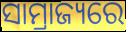
ସାମ୍ରାଜ୍ୟରେ